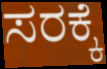
ಸರಕ್ಕೆ